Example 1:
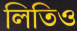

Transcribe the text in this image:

লিতিও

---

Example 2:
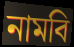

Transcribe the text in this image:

নামবি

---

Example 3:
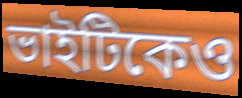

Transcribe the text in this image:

ভাইটিকেও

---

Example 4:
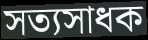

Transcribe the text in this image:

সত্যসাধক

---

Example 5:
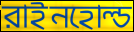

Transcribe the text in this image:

রাইনহোল্ড